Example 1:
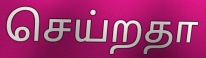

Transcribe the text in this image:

செய்றதா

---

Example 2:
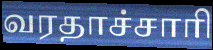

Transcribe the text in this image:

வரதாச்சாரி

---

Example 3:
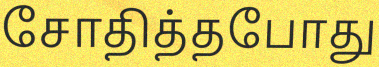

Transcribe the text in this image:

சோதித்தபோது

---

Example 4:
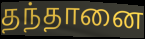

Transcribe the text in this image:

தந்தானை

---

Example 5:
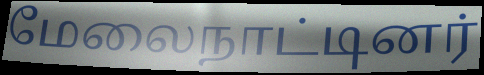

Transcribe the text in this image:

மேலைநாட்டினர்